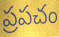
ప్రపచం